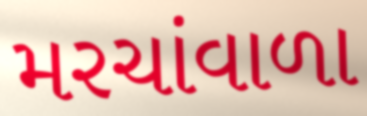
મરચાંવાળા